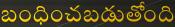
బంధించబడుతోంది